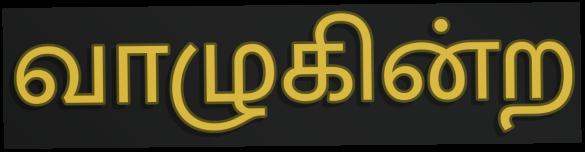
வாழுகின்ற